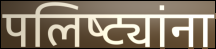
पलिष्ट्यांना